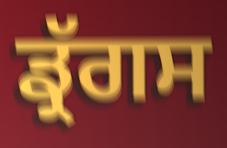
ਡ੍ਰੱਗਸ